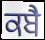
ਕਬੈ